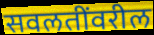
सवलतींवरील